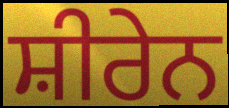
ਸ਼ੀਰੇਨ